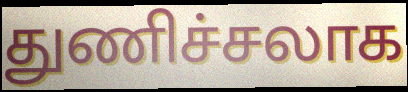
துணிச்சலாக